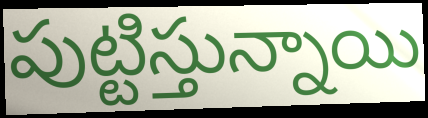
పుట్టిస్తున్నాయి